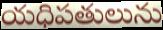
యధిపతులును